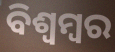
ବିଶ୍ଵମ୍ବର